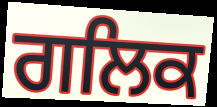
ਗਲਿਕ